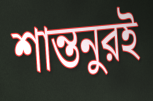
শান্তনুরই